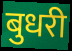
बुधरी